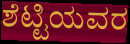
ಶೆಟ್ಟಿಯವರ